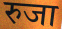
रुजा